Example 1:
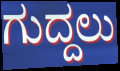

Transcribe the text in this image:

ಗುದ್ದಲು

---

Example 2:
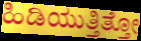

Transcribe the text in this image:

ಹಿಡಿಯುತ್ತಿತ್ತೋ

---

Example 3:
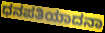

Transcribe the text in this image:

ಧನಪತಿಯಾದನಾ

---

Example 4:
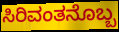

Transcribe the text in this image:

ಸಿರಿವಂತನೊಬ್ಬ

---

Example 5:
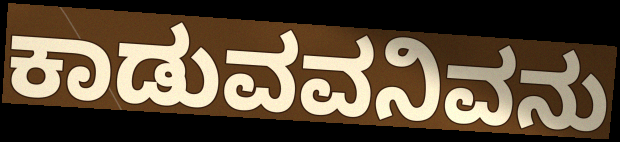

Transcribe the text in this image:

ಕಾಡುವವನಿವನು